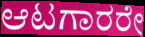
ಆಟಗಾರರೇ